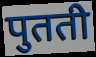
पुतती